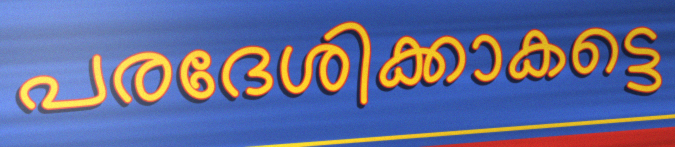
പരദേശിക്കാകട്ടെ